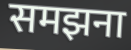
समझना